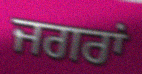
ਜਗਰਾਂ